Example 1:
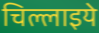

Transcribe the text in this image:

चिल्लाइये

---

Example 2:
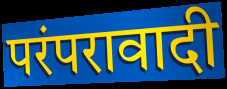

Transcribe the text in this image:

परंपरावादी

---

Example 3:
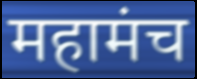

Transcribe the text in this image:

महामंच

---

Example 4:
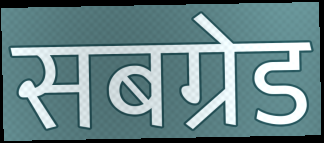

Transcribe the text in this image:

सबग्रेड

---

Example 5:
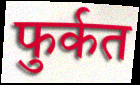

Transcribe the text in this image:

फुर्कत